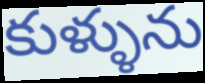
కుళ్ళును